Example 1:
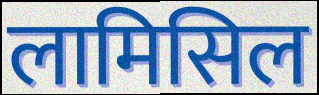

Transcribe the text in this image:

लामिसिल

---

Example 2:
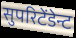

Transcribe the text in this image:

सुपरिटेंडेन्ट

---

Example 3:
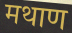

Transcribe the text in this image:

मथाण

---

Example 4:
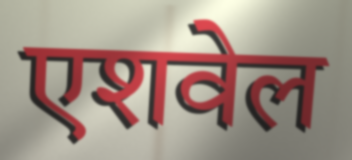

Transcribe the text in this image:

एशवेल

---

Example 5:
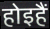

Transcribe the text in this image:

होइहैं